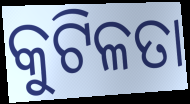
କୁଟିଳତା